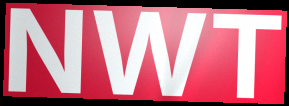
NWT